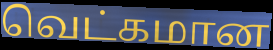
வெட்கமான